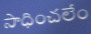
సాధించలేం